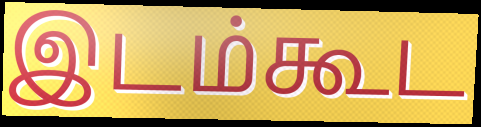
இடம்கூட